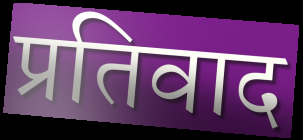
प्रतिवाद